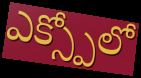
ఎక్స్పోలో